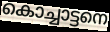
കൊച്ചാട്ടനെ